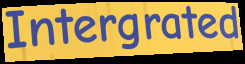
Intergrated